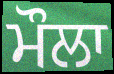
ਮੌਲਾ